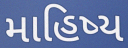
માહિષ્ય